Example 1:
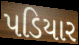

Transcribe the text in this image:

પડિયાર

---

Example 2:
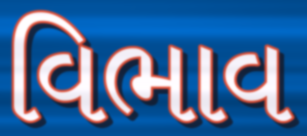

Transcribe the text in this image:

વિભાવ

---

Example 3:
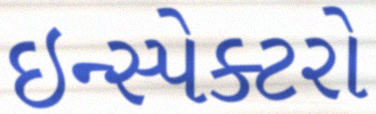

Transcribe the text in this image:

ઇન્સ્પેક્ટરો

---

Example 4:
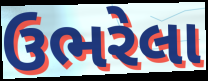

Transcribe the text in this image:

ઉભરેલા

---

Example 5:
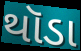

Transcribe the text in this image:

થૉડા